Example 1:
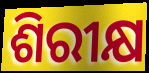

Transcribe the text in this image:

ଶିରୀକ୍ଷ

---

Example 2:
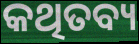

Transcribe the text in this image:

କଥିତବ୍ୟ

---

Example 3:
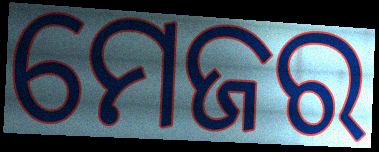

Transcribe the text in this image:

ମେଜର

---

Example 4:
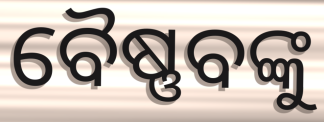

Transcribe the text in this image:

ବୈଷ୍ଣବଙ୍କୁ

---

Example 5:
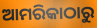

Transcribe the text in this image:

ଆମରିକାଠାରୁ